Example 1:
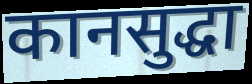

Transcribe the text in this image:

कानसुद्धा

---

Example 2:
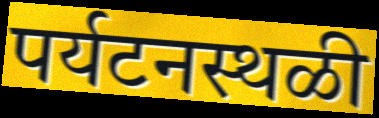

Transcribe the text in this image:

पर्यटनस्थळी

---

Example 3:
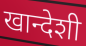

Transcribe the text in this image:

खान्देशी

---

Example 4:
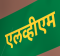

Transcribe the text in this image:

एलव्हीएम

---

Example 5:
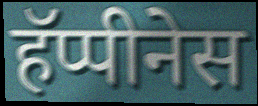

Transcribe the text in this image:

हॅप्पीनेस